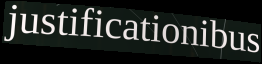
justificationibus